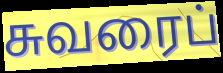
சுவரைப்